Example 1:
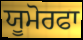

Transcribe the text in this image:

ਯੂਮੋਰਫਾ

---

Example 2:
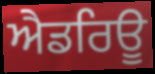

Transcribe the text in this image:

ਐਡਰਿਊ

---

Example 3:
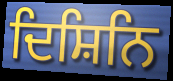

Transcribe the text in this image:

ਦਿਸ਼ਿਨਿ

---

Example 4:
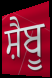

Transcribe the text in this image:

ਸ਼ੈਬੂ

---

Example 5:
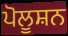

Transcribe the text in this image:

ਪੋਲੂਸ਼ਨ